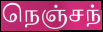
நெஞ்சந்